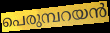
പെരുമ്പറയൻ